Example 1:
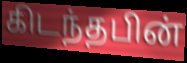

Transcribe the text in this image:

கிடந்தபின்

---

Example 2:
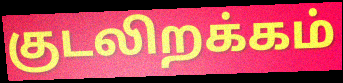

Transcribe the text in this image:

குடலிறக்கம்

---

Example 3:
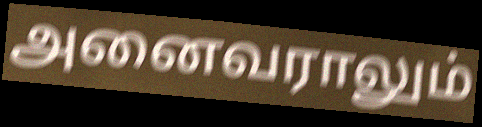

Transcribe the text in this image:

அனைவராலும்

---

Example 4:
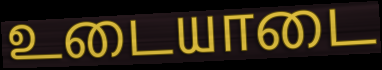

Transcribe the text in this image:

உடையாடை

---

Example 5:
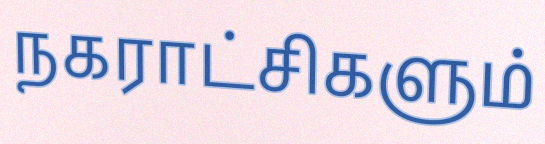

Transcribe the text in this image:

நகராட்சிகளும்